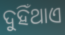
ଦୁହିଁଥାଏ